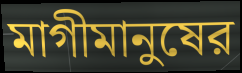
মাগীমানুষের